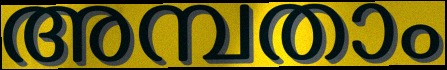
അമ്പതാം